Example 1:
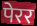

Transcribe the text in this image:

पेरर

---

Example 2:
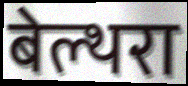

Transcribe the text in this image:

बेल्थरा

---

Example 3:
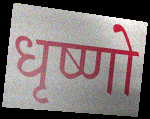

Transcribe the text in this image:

धृष्णो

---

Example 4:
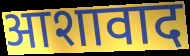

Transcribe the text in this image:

आशावाद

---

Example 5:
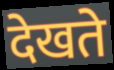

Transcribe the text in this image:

देखते